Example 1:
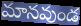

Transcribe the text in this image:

మానవుండ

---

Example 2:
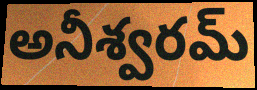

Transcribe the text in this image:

అనీశ్వరమ్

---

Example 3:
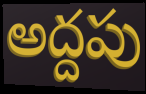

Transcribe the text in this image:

అద్దపు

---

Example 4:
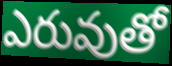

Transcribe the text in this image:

ఎరువుతో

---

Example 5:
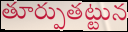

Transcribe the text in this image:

తూర్పుతట్టున